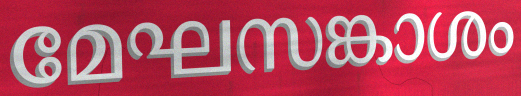
മേഘസങ്കാശം